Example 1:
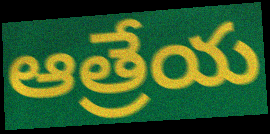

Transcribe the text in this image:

ఆత్రేయ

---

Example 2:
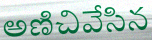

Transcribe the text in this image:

అణిచివేసిన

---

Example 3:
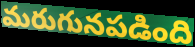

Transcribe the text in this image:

మరుగునపడింది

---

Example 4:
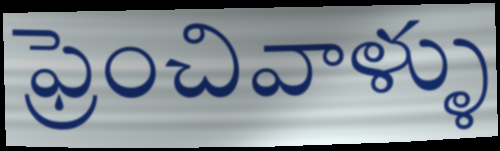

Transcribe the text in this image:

ఫ్రెంచివాళ్ళు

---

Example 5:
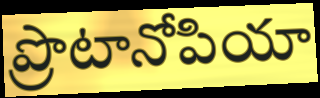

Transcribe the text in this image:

ప్రొటానోపియా